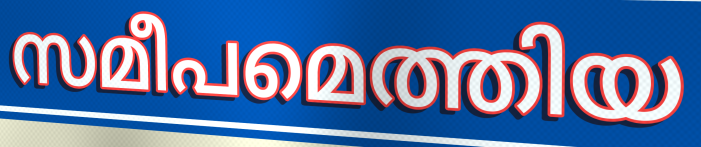
സമീപമെത്തിയ